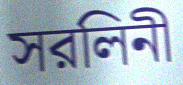
সরলিনী